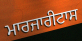
ਮਾਰਜਾਰੀਟਾਸ